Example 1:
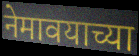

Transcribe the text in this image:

नेमावयाच्या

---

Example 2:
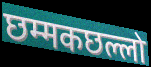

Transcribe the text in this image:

छम्मकछल्लो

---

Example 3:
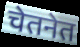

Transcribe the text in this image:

चेतनेत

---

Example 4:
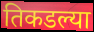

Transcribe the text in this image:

तिकडल्या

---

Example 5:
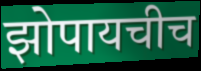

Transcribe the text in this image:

झोपायचीच